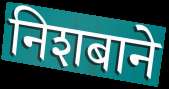
निशबाने